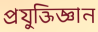
প্রযুক্তিজ্ঞান